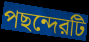
পছন্দেরটি